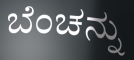
ಬೆಂಚನ್ನು